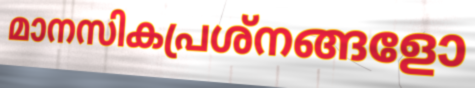
മാനസികപ്രശ്നങ്ങളോ